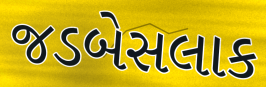
જડબેસલાક